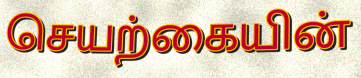
செயற்கையின்